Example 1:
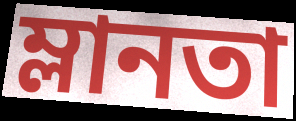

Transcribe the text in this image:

ম্লানতা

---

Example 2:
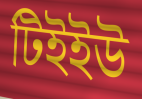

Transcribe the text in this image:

টিইইউ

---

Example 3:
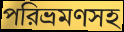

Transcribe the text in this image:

পরিভ্রমণসহ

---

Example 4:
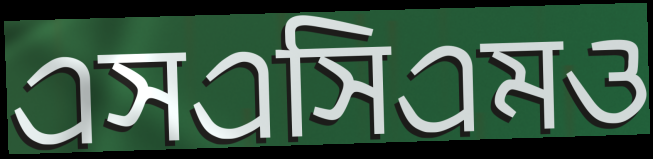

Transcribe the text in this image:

এসএসিএমও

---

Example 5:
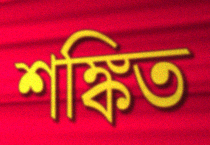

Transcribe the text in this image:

শঙ্কিত